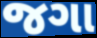
જગા